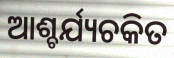
ଆଶ୍ଚର୍ଯ୍ୟଚକିତ